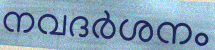
നവദർശനം